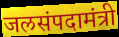
जलसंपदामंत्री